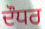
ਦੌਧਰ